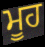
ਮੂਹ